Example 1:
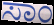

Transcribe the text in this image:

ಸಾಂ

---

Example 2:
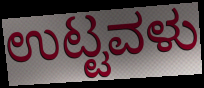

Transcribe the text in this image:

ಉಟ್ಟವಳು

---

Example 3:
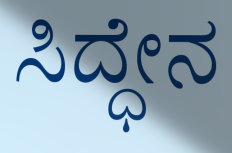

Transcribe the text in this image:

ಸಿದ್ಧೇನ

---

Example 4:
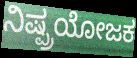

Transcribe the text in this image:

ನಿಷ್ಪ್ರಯೋಜಕ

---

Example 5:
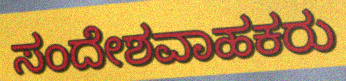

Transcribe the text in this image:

ಸಂದೇಶವಾಹಕರು